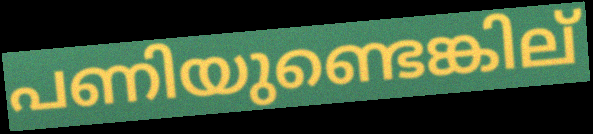
പണിയുണ്ടെങ്കില്